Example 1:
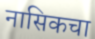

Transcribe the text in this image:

नासिकचा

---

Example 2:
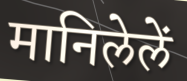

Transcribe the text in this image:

मानिलेलें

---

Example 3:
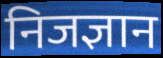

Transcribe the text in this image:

निजज्ञान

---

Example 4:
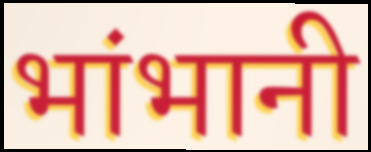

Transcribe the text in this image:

भांभानी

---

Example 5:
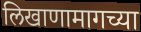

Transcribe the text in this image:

लिखाणामागच्या